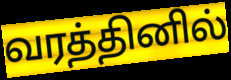
வரத்தினில்